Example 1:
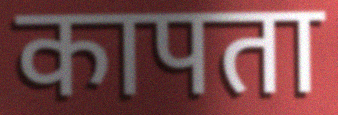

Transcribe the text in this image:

कापता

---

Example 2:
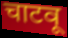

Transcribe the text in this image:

चाटवू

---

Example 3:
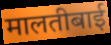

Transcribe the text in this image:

मालतीबाई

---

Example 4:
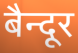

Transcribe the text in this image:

बैन्दूर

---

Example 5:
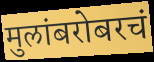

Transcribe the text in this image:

मुलांबरोबरचं